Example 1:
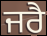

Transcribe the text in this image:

ਜਰੈ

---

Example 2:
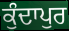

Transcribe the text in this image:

ਕੁੰਦਾਪੁਰ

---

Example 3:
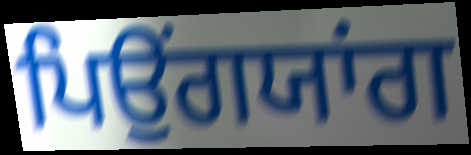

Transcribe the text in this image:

ਪਿਉਂਗਯਾਂਗ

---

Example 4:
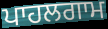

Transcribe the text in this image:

ਪਾਹਲਗਾਮ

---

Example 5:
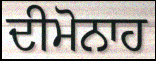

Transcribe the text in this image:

ਦੀਮੋਨਾਹ